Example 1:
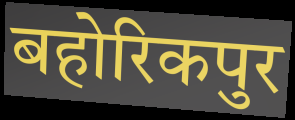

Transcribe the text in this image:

बहोरिकपुर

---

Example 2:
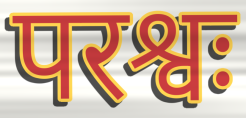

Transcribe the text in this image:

परश्वः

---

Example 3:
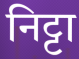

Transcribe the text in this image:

निट्टा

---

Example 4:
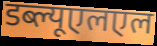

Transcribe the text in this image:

डब्ल्यूएलएल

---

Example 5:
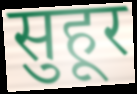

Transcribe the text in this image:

सुहूर